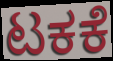
ಟಕಕೆ